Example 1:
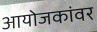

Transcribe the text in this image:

आयोजकांवर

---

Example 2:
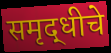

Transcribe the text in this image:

समृद्धीचे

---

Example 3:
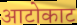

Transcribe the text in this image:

आटोकाट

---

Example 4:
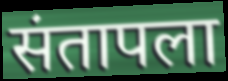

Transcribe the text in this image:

संतापला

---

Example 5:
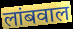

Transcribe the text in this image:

लांबवाल